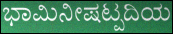
ಭಾಮಿನೀಷಟ್ಪದಿಯ